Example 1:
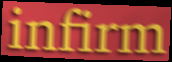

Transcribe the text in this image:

infirm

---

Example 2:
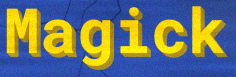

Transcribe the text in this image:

Magick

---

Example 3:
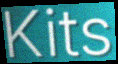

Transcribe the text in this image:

Kits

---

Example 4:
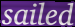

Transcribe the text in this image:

sailed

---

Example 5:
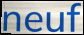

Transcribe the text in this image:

neuf